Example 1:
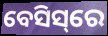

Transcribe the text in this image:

ବେସିସ୍‌ରେ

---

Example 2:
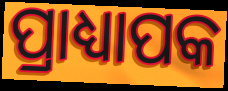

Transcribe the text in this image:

ପ୍ରାଧ୍ୟାପକ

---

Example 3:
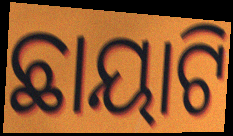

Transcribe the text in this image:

ଛାୟାଟି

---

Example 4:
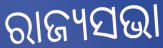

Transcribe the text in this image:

ରାଜ୍ୟସଭା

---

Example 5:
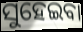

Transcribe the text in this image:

ସୁହେଇବା